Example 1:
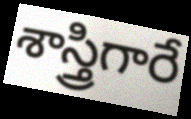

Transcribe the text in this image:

శాస్త్రిగారే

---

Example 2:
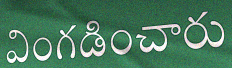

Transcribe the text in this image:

వింగడించారు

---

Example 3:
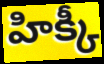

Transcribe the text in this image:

హిక్కీ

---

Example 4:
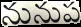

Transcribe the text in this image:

నునుప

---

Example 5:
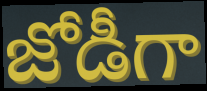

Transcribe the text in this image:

జోడీగా